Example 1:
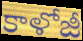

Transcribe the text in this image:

కాళోజీ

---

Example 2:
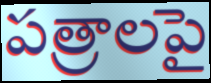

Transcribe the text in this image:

పత్రాలపై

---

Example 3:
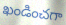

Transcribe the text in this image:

ఖండించగా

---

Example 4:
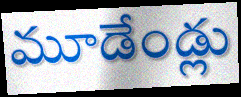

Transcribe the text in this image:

మూడేండ్లు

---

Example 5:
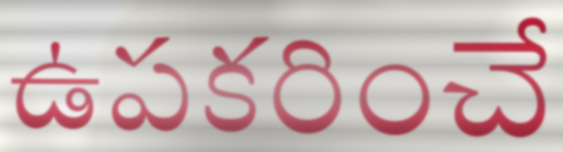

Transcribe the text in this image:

ఉపకరించే